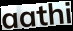
aathi